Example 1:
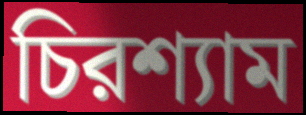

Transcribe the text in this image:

চিরশ্যাম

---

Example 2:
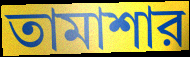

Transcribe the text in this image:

তামাশার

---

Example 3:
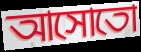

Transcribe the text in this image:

আসোতো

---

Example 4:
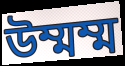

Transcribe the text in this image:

উম্মম্ম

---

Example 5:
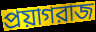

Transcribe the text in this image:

প্রয়াগরাজ